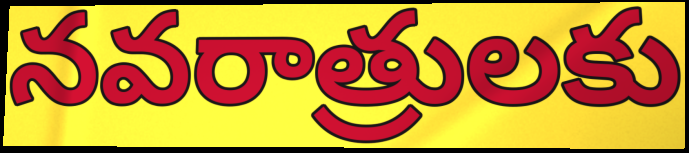
నవరాత్రులకు